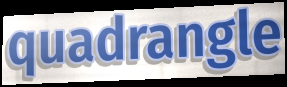
quadrangle